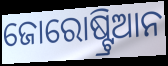
ଜୋରୋଷ୍ଟ୍ରିଆନ